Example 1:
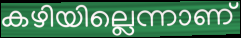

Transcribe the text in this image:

കഴിയില്ലെന്നാണ്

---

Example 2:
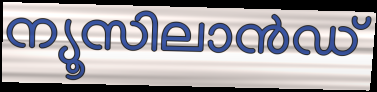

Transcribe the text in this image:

ന്യൂസിലാൻഡ്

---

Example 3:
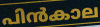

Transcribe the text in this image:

പിൻകാല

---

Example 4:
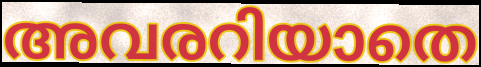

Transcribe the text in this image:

അവരറിയാതെ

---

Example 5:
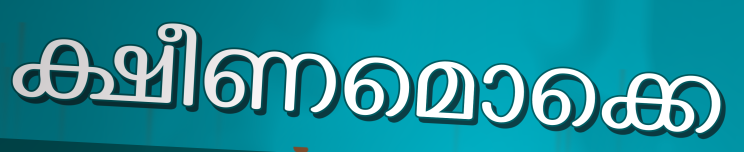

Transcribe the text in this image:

ക്ഷീണമൊക്കെ